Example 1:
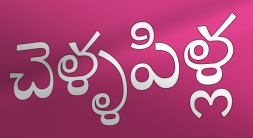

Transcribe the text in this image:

చెళ్ళపిళ్ల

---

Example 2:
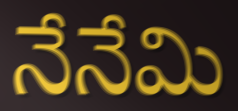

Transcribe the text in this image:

నేనేమి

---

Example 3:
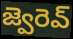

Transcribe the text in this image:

జ్వెరెవ్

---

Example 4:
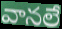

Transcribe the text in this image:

వానలే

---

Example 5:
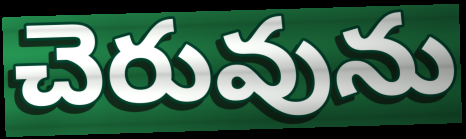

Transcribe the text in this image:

చెరువును